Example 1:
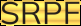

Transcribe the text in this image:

SRPF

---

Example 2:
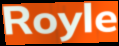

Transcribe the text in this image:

Royle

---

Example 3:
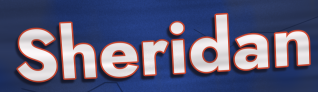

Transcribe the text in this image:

Sheridan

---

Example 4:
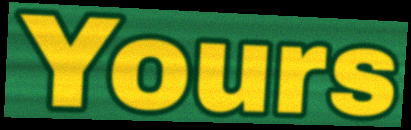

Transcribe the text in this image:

Yours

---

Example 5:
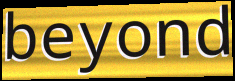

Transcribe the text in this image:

beyond